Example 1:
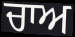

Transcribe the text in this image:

ਚਾਅ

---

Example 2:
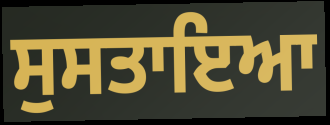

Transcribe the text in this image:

ਸੁਸਤਾਇਆ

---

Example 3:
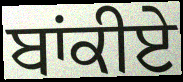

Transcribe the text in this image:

ਬਾਂਕੀਏ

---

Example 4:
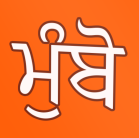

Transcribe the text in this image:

ਮੁੰਬੋ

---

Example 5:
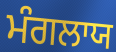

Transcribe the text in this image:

ਮੰਗਲਾਯ